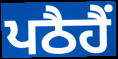
ਪਠੈਹੈਂ